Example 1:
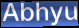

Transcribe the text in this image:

Abhyu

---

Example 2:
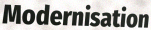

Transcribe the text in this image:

Modernisation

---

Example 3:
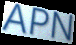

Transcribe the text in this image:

APN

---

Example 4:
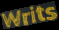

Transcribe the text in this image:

Writs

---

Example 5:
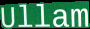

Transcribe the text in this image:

Ullam